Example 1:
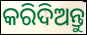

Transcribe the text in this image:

କରିଦିଅନ୍ତୁ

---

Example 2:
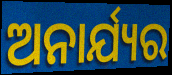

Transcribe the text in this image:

ଅନାର୍ଯ୍ୟର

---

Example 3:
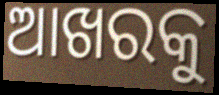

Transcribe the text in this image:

ଆଖରକୁ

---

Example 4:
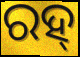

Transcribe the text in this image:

ରହ୍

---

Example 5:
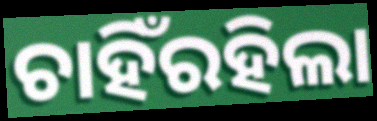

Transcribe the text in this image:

ଚାହିଁରହିଲା